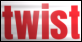
twist